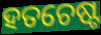
ହତଚେଷ୍ଟ